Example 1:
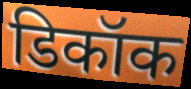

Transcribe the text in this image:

डिकॉक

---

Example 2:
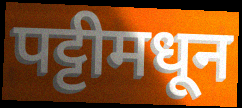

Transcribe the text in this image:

पट्टीमधून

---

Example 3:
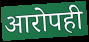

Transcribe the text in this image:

आरोपही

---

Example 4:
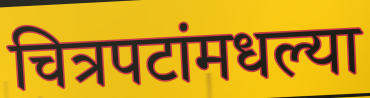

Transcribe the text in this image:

चित्रपटांमधल्या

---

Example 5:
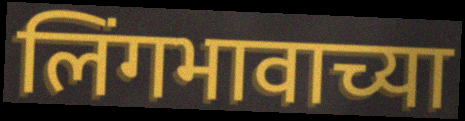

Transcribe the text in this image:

लिंगभावाच्या